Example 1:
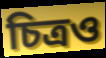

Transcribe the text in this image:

চিত্ৰও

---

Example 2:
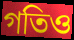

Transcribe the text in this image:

গতিও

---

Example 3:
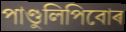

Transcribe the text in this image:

পাণ্ডুলিপিবোৰ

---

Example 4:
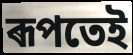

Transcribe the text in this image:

ৰূপতেই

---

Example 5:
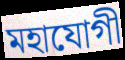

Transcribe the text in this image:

মহাযোগী